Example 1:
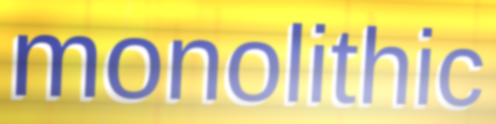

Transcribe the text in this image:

monolithic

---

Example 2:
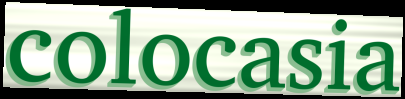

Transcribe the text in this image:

colocasia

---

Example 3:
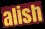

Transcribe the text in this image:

alish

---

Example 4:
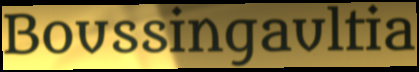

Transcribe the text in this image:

Boussingaultia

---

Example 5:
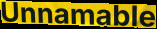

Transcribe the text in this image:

Unnamable